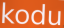
kodu